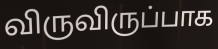
விருவிருப்பாக